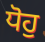
ਧੋਹੁ